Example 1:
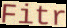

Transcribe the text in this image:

Fitr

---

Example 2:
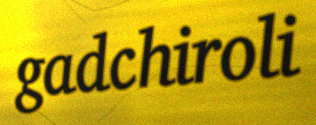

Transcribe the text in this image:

gadchiroli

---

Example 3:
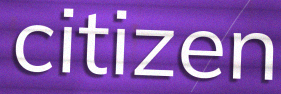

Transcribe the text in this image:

citizen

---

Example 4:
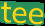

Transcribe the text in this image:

tee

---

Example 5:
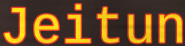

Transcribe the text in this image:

Jeitun